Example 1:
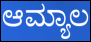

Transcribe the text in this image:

ಆಮ್ಯಾಲ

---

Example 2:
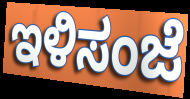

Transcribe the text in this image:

ಇಳಿಸಂಜೆ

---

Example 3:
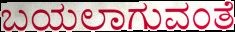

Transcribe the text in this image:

ಬಯಲಾಗುವಂತೆ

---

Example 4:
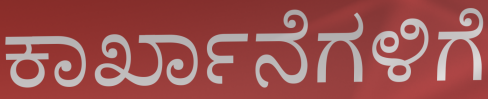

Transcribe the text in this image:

ಕಾರ್ಖಾನೆಗಳಿಗೆ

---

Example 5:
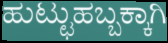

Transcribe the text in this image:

ಹುಟ್ಟುಹಬ್ಬಕ್ಕಾಗಿ